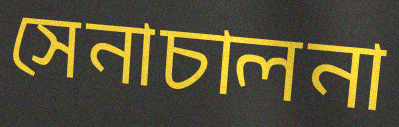
সেনাচালনা